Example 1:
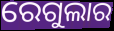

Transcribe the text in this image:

ରେଗୁଲାର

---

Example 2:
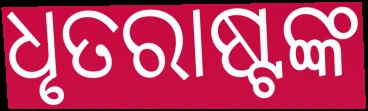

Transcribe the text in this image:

ଧୃତରାଷ୍ଟଙ୍କ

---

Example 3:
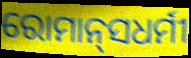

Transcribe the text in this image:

ରୋମାନ୍‌ସଧର୍ମୀ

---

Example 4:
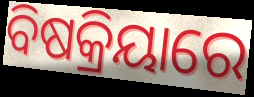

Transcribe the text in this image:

ବିଷକ୍ରିୟାରେ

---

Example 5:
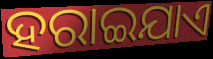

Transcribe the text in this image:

ହରାଇଯାଏ